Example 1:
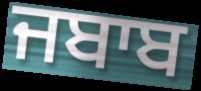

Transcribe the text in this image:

ਜਬਾਬ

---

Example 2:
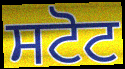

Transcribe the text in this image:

ਸਟੋਟ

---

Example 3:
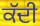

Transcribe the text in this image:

ਕੱਦੀ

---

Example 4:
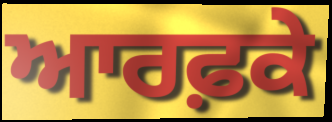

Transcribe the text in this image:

ਆਰਫ਼ਕੇ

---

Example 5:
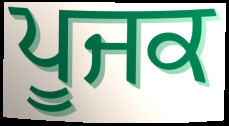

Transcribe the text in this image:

ਪੂਜਕ